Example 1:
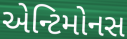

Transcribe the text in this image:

એન્ટિમોનસ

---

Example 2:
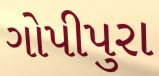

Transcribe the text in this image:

ગોપીપુરા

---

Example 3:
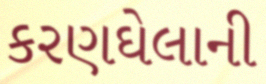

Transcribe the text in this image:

કરણઘેલાની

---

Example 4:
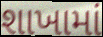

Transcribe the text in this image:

શાખામાં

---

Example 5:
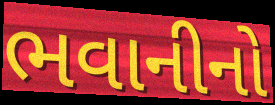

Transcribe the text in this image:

ભવાનીનો